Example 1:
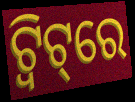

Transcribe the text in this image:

ଟ୍ବିଟ୍‌ରେ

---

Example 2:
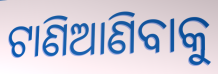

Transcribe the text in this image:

ଟାଣିଆଣିବାକୁ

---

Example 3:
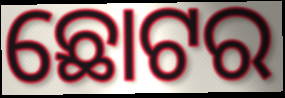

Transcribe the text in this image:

ଛୋଟର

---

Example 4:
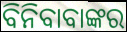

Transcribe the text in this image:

ବିନିବାବାଙ୍କର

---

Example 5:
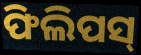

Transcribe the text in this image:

ଫିଲିପସ୍